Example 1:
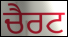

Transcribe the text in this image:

ਚੈਰਟ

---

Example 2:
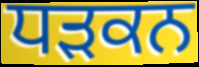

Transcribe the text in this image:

ਧੜਕਨ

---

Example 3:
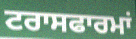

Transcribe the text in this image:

ਟਰਾਸਫਾਰਮਾਂ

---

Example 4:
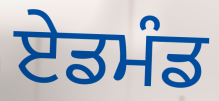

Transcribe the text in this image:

ਏਡਮੰਡ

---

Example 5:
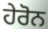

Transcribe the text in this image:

ਹੇਰੋਨ